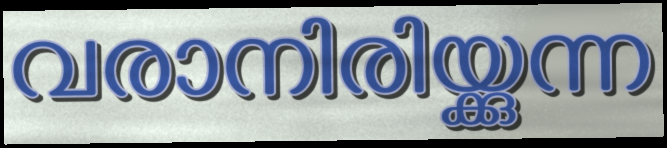
വരാനിരിയ്ക്കുന്ന